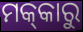
ମକ୍‌କାରୁ